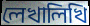
লেখালিখি